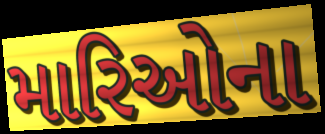
મારિઓના